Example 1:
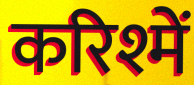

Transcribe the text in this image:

करिश्में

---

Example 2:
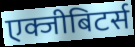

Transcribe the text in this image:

एक्जीबिटर्स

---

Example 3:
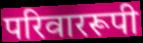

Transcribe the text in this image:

परिवाररूपी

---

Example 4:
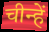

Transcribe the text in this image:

चीन्हें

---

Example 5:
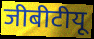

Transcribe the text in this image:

जीबीटीयू